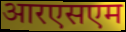
आरएसएम